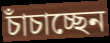
চাঁচাচ্ছেন